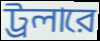
ট্রলারে